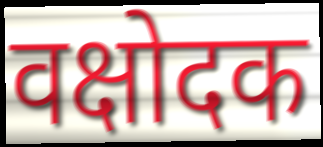
वक्षोदक